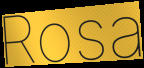
Rosa